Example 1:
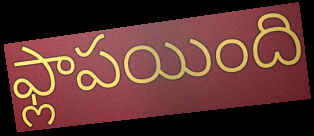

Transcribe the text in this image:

ఫ్లాపయింది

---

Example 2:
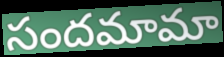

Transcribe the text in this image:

సందమామా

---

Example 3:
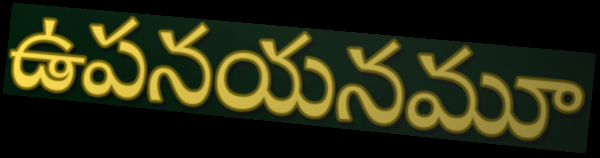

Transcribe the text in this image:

ఉపనయనమూ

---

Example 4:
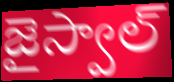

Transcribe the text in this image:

జైస్వాల్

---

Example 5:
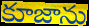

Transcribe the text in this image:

కూజాను